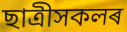
ছাত্ৰীসকলৰ